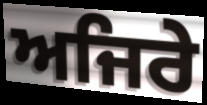
ਅਜਿਰੇ